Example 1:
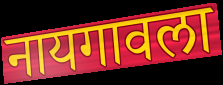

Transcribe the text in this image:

नायगावला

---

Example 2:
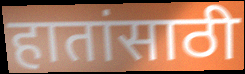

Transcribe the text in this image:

हातांसाठी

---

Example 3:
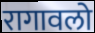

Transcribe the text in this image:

रागावलो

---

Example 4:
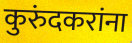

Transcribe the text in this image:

कुरुंदकरांना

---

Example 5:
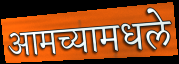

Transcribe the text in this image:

आमच्यामधले